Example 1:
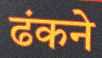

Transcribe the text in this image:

ढंकने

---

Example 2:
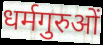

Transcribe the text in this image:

धर्मगुरुओं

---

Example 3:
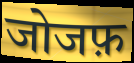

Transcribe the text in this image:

जोजफ़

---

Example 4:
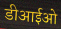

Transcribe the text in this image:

डीआईओ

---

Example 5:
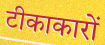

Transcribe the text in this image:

टीकाकारों